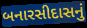
બનારસીદાસનું